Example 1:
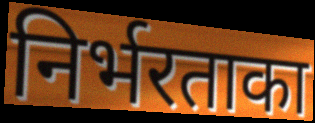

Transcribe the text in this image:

निर्भरताका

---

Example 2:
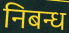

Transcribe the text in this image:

निबन्ध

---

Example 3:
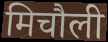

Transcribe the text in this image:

मिचौली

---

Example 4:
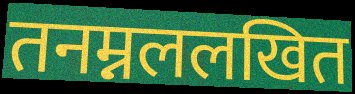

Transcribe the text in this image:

तनम्नललखित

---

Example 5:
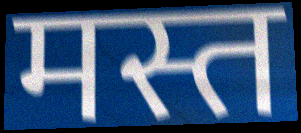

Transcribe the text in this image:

मस्त